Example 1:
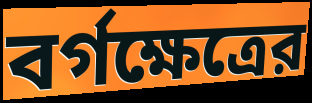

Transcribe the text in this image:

বর্গক্ষেত্রের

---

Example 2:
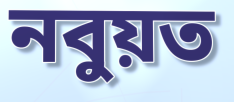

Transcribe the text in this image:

নবুয়ত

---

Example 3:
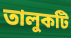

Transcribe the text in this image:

তালুকটি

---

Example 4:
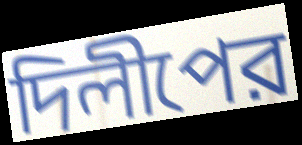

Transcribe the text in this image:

দিলীপের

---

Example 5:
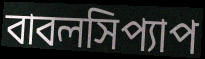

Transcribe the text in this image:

বাবলসিপ্যাপ